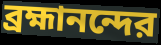
ব্রহ্মানন্দের